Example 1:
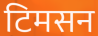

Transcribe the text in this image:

टिमसन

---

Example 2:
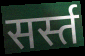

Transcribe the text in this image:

सर्स्त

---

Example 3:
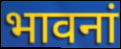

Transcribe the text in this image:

भावनां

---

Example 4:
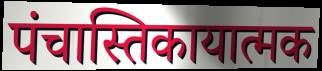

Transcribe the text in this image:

पंचास्तिकायात्मक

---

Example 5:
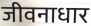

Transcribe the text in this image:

जीवनाधार